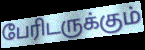
பேரிடருக்கும்